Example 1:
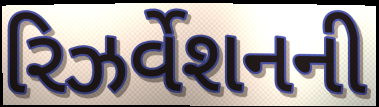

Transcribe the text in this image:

રિઝર્વેશનની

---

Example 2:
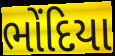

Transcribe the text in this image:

ભોંદિયા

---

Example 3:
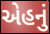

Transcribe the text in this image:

એહનું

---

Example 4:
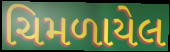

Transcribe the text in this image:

ચિમળાયેલ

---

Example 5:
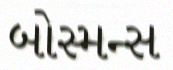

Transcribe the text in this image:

બોસ્મન્સ